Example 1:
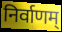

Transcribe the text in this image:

निर्वाणम्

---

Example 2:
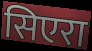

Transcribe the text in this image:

सिएरा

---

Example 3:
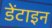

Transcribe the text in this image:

डेंटाइन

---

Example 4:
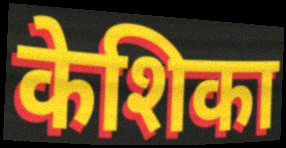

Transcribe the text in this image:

केशिका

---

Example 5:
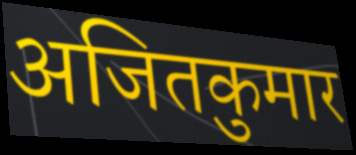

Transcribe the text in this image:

अजितकुमार